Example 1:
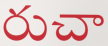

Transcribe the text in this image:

రుచా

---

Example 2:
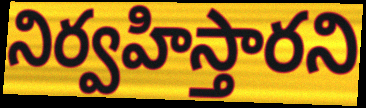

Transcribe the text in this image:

నిర్వహిస్తారని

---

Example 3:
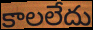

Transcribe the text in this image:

కాలలేదు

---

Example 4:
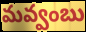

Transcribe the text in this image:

మవ్వంబు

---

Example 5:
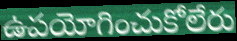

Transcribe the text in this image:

ఉపయోగించుకోలేరు